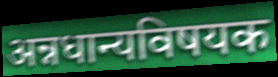
अन्नधान्यविषयक